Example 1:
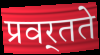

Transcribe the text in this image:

प्रवर्तते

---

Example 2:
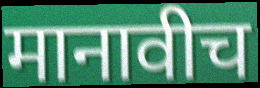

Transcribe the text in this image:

मानावीच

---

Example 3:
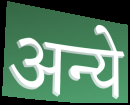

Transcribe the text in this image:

अन्ये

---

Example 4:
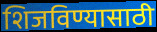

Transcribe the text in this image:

शिजविण्यासाठी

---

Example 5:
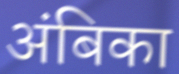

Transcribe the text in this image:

अंबिका